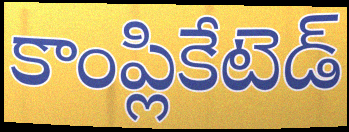
కాంప్లికేటెడ్